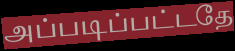
அப்படிப்பட்டதே